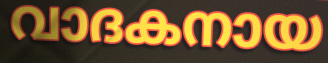
വാദകനായ